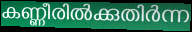
കണ്ണീരിൽക്കുതിർന്ന